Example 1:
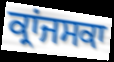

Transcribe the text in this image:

ਕ੍ਰਾਂਜਸਕਾ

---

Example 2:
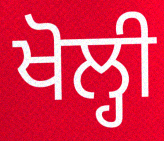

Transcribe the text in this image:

ਖੋਲ੍ਹੀ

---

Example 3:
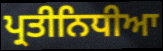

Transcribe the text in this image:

ਪ੍ਰਤੀਨਿਧੀਆ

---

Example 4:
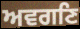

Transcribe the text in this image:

ਅਵਗਣਿ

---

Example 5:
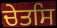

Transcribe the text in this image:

ਚੇਤਸਿ